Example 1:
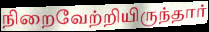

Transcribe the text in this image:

நிறைவேற்றியிருந்தார்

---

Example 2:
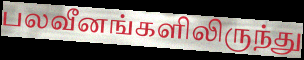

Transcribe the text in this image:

பலவீனங்களிலிருந்து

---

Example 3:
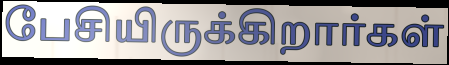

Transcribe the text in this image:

பேசியிருக்கிறார்கள்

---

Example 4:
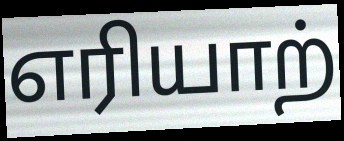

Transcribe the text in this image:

எரியாற்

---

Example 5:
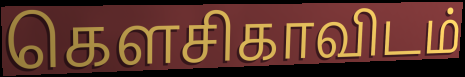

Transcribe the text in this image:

கௌசிகாவிடம்